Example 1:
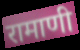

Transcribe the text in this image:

रामाणी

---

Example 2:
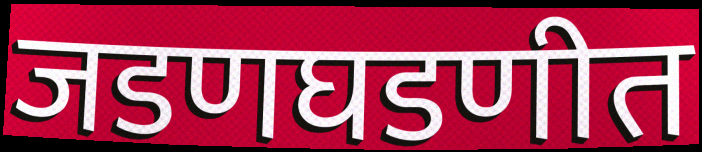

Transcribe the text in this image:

जडणघडणीत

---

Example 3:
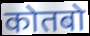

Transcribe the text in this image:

कोतबो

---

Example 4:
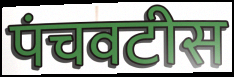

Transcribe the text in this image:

पंचवटीस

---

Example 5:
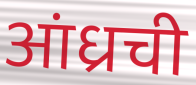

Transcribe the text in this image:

आंध्रची